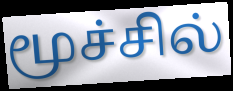
மூச்சில்